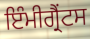
ਇੰਮੀਗ੍ਰੈਂਟਸ